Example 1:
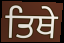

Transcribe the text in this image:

ਤਿਥੇ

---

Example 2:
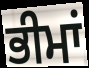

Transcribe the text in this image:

ਭੀਮਾਂ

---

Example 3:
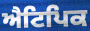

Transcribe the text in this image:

ਐਟਿਪਿਕ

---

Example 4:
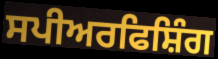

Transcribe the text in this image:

ਸਪੀਅਰਫਿਸ਼ਿੰਗ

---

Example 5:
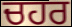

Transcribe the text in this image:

ਚਹਰ